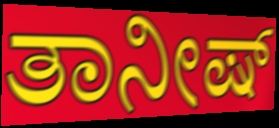
ತಾನೀಷ್